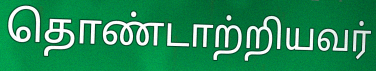
தொண்டாற்றியவர்